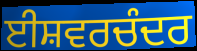
ਈਸ਼ਵਰਚੰਦਰ